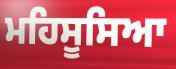
ਮਹਿਸੂਸਿਆ